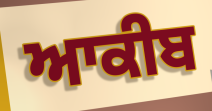
ਆਕੀਬ